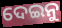
ଦେଇନୁ